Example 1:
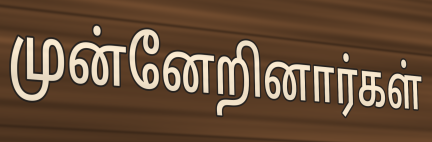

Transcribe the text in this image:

முன்னேறினார்கள்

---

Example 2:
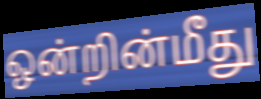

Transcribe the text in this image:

ஒன்றின்மீது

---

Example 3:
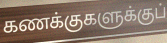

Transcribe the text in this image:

கணக்குகளுக்குப்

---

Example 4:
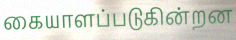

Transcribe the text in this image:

கையாளப்படுகின்றன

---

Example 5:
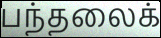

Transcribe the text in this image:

பந்தலைக்